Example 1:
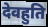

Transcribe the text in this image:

देवहुति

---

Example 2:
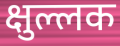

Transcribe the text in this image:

क्षुल्लक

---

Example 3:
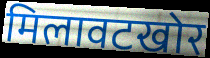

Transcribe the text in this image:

मिलावटखोर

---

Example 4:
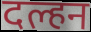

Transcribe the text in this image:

दल्हन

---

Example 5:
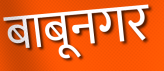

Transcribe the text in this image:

बाबूनगर